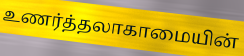
உணர்த்தலாகாமையின்